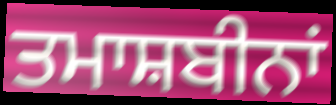
ਤਮਾਸ਼ਬੀਨਾਂ